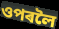
ওপৰলৈ